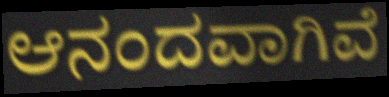
ಆನಂದವಾಗಿವೆ